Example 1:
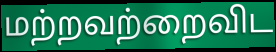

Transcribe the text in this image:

மற்றவற்றைவிட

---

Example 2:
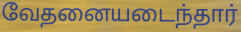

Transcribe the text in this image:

வேதனையடைந்தார்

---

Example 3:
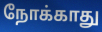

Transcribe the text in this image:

நோக்காது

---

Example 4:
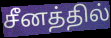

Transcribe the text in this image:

சீனத்தில்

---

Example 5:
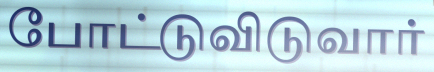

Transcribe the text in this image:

போட்டுவிடுவார்